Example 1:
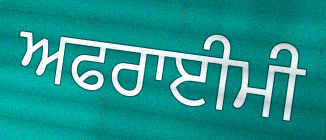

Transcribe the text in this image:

ਅਫਰਾਈਮੀ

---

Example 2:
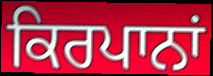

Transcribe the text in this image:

ਕਿਰਪਾਨਾਂ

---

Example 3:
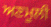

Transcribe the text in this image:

ਅਣਮੂਲੀ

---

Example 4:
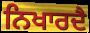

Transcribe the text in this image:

ਨਿਖਾਰਦੈ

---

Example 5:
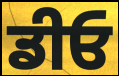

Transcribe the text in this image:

ਡੀਓ